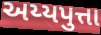
અય્યપુત્તા